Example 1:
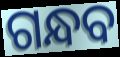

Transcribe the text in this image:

ଗନ୍ଧବ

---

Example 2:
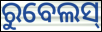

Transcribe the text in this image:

ରୁବେଲସ୍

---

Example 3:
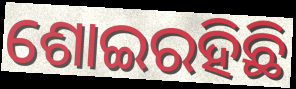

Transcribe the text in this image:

ଶୋଇରହିଛି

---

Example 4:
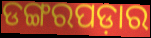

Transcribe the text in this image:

ଡଙ୍ଗରପଡ଼ାର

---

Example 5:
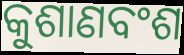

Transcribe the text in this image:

କୁଶାଣବଂଶ